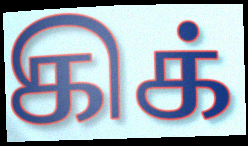
கிக்